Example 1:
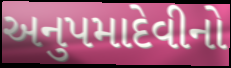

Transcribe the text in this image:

અનુપમાદેવીનો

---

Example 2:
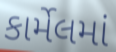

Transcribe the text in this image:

કાર્મેલમાં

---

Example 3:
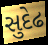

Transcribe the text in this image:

સુદેઢ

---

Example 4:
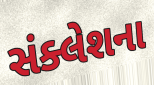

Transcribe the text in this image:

સંક્લેશના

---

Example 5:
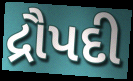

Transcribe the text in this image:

દ્રૌપદી